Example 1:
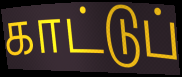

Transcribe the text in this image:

காட்டுப்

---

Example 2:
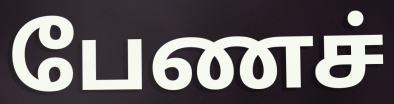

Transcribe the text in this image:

பேணச்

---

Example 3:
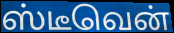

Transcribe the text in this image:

ஸ்டீவென்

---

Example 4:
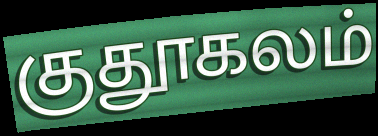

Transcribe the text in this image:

குதூகலம்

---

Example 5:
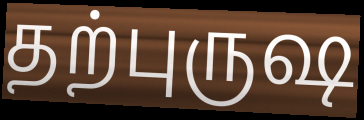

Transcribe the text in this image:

தற்புருஷ